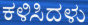
ಕಳಿಸಿದಳು